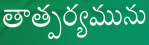
తాత్పర్యమును